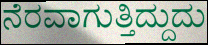
ನೆರವಾಗುತ್ತಿದ್ದುದು